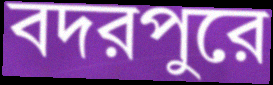
বদরপুরে